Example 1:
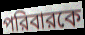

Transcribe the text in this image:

পরিবারকে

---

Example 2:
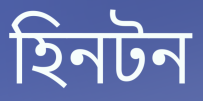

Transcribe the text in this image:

হিনটন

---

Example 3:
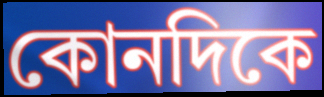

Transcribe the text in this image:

কোনদিকে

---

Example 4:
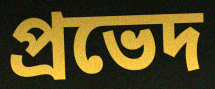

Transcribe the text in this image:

প্রভেদ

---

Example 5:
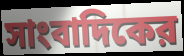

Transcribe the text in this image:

সাংবাদিকের